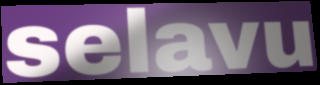
selavu